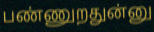
பண்ணுறதுன்னு